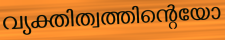
വ്യക്തിത്വത്തിന്റെയോ